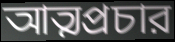
আত্মপ্রচার